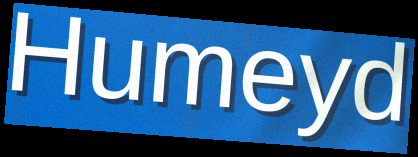
Humeyd